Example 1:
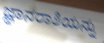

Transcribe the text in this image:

ಜ್ಞಾನರಾಶಿಯನ್ನು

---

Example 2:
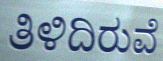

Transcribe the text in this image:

ತಿಳಿದಿರುವೆ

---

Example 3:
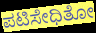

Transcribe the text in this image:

ಪಟಿಸೇಧಿತೋ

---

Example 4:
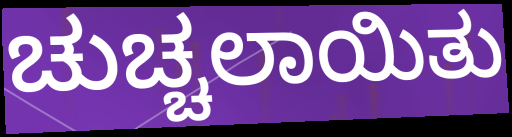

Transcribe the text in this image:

ಚುಚ್ಚಲಾಯಿತು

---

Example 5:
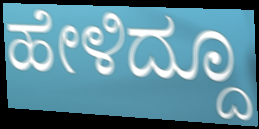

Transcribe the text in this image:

ಹೇಳಿದ್ದೂ